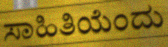
ಸಾಹಿತಿಯೆಂದು